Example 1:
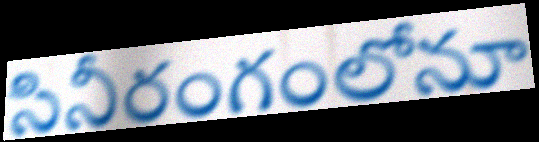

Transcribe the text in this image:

సినీరంగంలోనూ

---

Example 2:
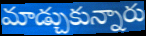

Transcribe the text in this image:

మాడ్చుకున్నారు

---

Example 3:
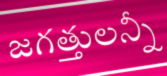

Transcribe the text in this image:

జగత్తులన్నీ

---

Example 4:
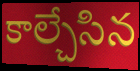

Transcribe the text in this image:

కాల్చేసిన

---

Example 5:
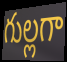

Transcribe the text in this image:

గుల్లగా